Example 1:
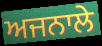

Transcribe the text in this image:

ਅਜਨਾਲੇ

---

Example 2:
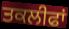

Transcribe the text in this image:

ਤਕਲੀਫਾਂ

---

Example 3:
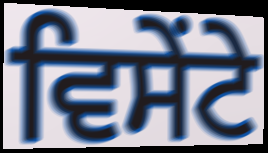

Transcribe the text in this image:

ਵਿਸੇਂਟੇ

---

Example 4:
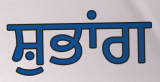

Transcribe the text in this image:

ਸ਼ੁਭਾਂਗ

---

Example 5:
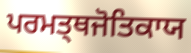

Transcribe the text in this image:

ਪਰਮਤ੍ਥਜੋਤਿਕਾਯ